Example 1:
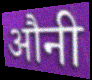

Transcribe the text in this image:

औनी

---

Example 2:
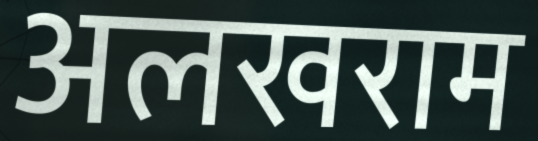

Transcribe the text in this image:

अलखराम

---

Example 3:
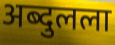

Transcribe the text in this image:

अब्दुलला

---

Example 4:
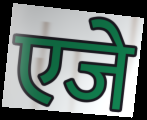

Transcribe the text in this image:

एजे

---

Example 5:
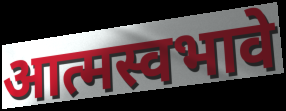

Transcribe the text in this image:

आत्मस्वभावे